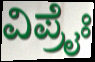
ವಿಪ್ರೈಃ